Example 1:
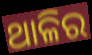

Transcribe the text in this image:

ଥାଳିର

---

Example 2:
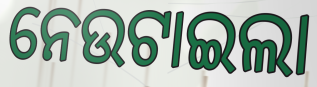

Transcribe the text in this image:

ନେଉଟାଇଲା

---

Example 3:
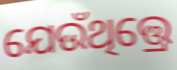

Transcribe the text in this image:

ଯେଉଁଥିତ୍ତ୍ରେ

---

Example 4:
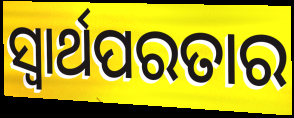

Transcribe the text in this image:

ସ୍ଵାର୍ଥପରତାର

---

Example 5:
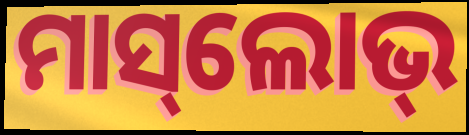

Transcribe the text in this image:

ମାସ୍‌ଲୋଭ୍